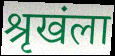
श्रृखंला